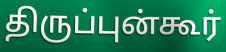
திருப்புன்கூர்